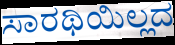
ಸಾರಥಿಯಿಲ್ಲದ